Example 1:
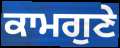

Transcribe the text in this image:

ਕਾਮਗੁਣੇ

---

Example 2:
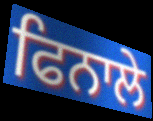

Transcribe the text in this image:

ਫਿਨਾਲੇ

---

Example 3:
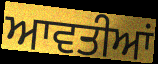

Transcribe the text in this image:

ਆਵਤੀਆਂ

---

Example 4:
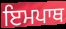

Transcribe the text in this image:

ਇਮਪਾਥ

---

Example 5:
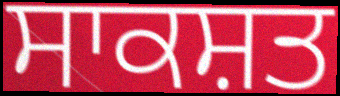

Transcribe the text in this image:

ਸਾਕਸ਼ਤ